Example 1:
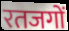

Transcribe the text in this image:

रतजगों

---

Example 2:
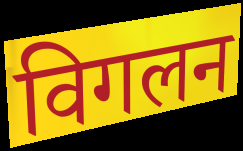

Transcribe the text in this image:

विगलन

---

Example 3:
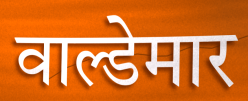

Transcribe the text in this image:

वाल्डेमार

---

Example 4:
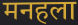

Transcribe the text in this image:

मनहला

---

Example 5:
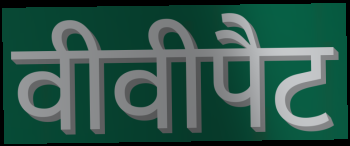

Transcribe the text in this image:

वीवीपैट